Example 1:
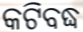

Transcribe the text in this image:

କଟିବଦ୍ଧ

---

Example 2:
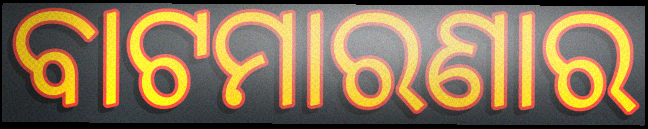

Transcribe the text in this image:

ବାଟମାରଣାର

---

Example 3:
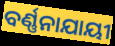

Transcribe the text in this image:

ବର୍ଣ୍ଣନାଯାୟୀ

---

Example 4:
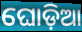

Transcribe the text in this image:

ଘୋଡ଼ିଆ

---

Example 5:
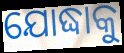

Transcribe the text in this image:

ଯୋଦ୍ଧାକୁ